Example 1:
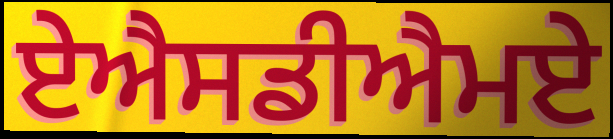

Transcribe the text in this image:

ਏਐਸਡੀਐਮਏ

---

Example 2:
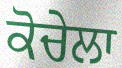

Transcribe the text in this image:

ਕੋਚੇਲਾ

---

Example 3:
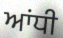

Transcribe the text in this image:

ਆਂਧੀ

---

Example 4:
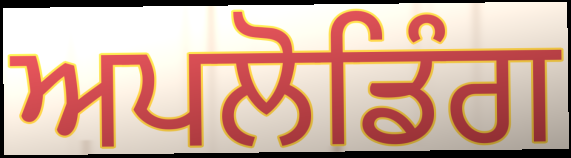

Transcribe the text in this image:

ਅਪਲੋਡਿੰਗ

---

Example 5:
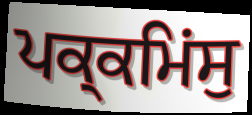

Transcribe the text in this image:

ਪਕ੍ਕਮਿਂਸੁ